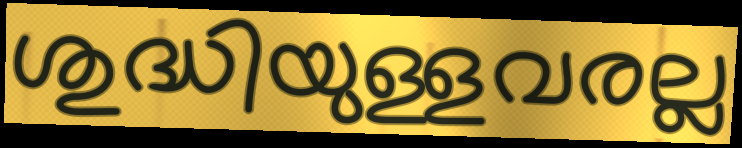
ശുദ്ധിയുള്ളവരല്ല